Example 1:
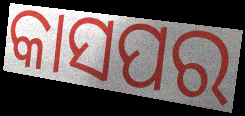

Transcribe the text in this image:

କାସପର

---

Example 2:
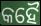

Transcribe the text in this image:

କହୈ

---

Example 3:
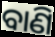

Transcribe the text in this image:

ବାଣି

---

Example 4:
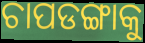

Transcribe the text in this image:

ଚାପଡଙ୍ଗାକୁ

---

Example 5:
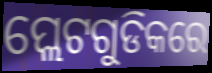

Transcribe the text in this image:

ପ୍ଲେଟଗୁଡିକରେ